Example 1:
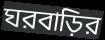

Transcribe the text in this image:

ঘরবাড়ির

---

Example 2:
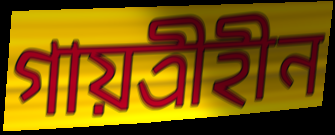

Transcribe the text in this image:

গায়ত্রীহীন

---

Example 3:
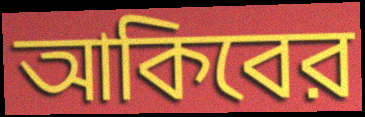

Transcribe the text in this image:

আকিবের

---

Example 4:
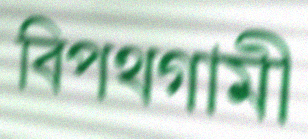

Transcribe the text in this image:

বিপথগামী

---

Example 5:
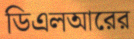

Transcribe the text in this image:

ডিএলআরের